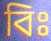
বিঃ